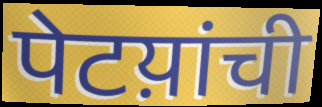
पेटय़ांची